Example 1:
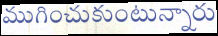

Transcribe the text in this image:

ముగించుకుంటున్నారు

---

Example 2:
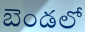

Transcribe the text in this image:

బెండలో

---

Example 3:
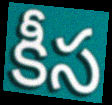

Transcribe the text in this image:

కీస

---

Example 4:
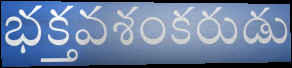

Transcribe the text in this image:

భక్తవశంకరుడు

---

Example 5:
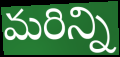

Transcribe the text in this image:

మరిన్ని